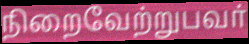
நிறைவேற்றுபவர்